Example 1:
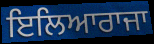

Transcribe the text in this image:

ਇਲਿਆਰਾਜਾ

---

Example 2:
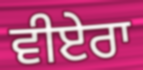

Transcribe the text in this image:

ਵੀਏਰਾ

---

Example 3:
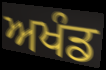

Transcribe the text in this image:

ਅਖੰਡ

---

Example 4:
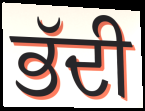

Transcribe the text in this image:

ਭੱਦੀ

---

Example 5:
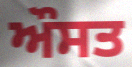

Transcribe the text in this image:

ਔਸਤ